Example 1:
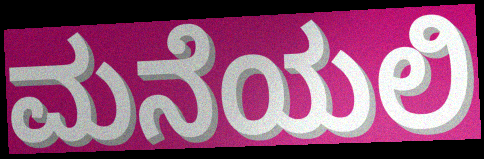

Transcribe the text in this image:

ಮನೆಯಲಿ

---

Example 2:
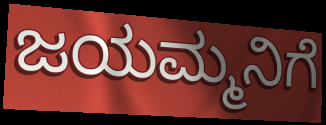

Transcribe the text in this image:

ಜಯಮ್ಮನಿಗೆ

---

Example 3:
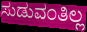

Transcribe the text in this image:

ಸುಡುವಂತಿಲ್ಲ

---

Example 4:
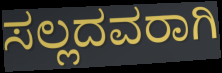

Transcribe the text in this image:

ಸಲ್ಲದವರಾಗಿ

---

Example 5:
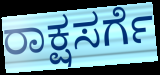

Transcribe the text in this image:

ರಾಕ್ಷಸರ್ಗೆ